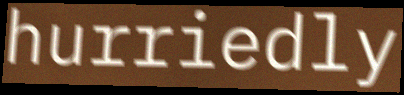
hurriedly